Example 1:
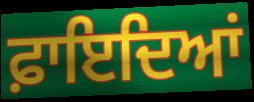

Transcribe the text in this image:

ਫ਼ਾਇਦਿਆਂ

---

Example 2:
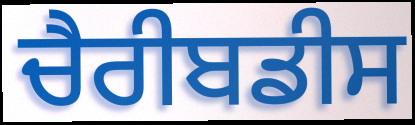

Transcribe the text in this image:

ਚੈਰੀਬਡੀਸ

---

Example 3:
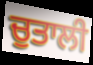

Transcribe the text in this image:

ਚੁਤਾਲੀ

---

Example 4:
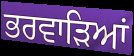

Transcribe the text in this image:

ਭਰਵਾੜਿਆਂ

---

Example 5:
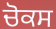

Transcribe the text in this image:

ਚੋਕਸ